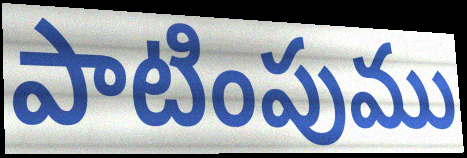
పాటింపుము